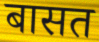
बासत